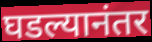
घडल्यानंतर